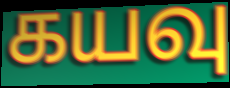
கயவு